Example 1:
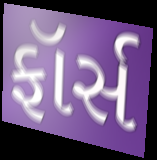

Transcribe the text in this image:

ફૉર્સ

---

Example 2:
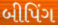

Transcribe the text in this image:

બીપિંગ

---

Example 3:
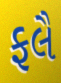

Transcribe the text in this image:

ફલૈ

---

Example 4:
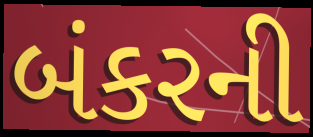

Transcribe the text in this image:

બંકરની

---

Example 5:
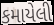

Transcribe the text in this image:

કમાયેલી